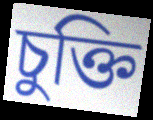
চুক্তি